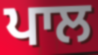
ਪਾਲ